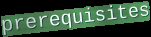
prerequisites